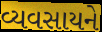
વ્યવસાયને